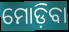
ମୋଡ଼ିବା